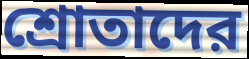
শ্রোতাদের